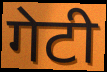
गेटी